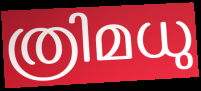
ത്രിമധു